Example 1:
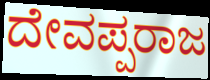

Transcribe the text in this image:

ದೇವಪ್ಪರಾಜ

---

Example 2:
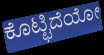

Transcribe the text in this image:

ಕೊಟ್ಟಿದೆಯೋ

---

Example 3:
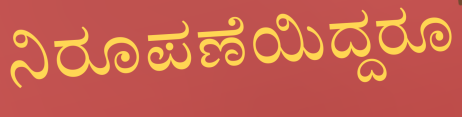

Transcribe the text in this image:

ನಿರೂಪಣೆಯಿದ್ದರೂ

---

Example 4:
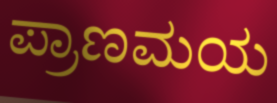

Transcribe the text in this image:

ಪ್ರಾಣಮಯ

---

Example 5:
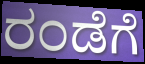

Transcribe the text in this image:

ರಂಡೆಗೆ